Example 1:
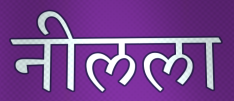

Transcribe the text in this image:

नीलला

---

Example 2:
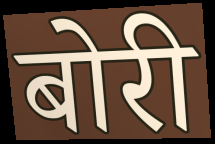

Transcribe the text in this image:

बोरी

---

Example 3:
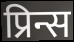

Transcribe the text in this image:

प्रिन्स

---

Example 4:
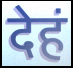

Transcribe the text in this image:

देहं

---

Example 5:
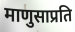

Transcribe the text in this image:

माणुसाप्रति